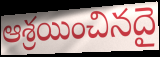
ఆశ్రయించినదై